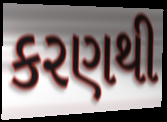
કરણથી